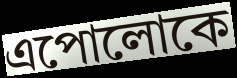
এপোলোকে